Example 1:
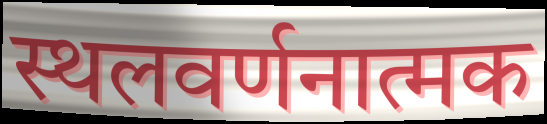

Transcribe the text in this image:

स्थलवर्णनात्मक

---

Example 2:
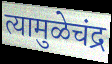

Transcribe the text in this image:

त्यामुळेचंद्र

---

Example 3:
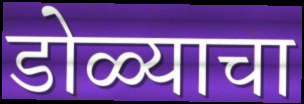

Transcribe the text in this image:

डोळ्याचा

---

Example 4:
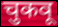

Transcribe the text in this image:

चुकवू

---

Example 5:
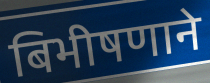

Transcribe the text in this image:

बिभीषणाने